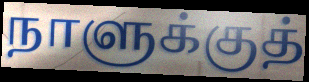
நாளுக்குத்